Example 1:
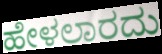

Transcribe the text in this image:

ಹೇಳಲಾರದು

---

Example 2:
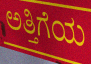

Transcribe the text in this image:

ಅತ್ತಿಗೆಯ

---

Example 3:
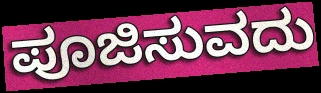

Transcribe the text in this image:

ಪೂಜಿಸುವದು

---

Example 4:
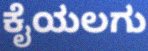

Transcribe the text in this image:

ಕೈಯಲಗು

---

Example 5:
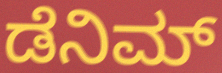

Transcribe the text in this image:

ಡೆನಿಮ್